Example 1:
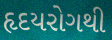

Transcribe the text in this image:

હૃદયરોગથી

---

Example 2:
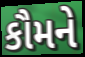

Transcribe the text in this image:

કૌમને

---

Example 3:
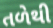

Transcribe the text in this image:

તળેથી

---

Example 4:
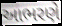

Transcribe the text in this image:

આભરણે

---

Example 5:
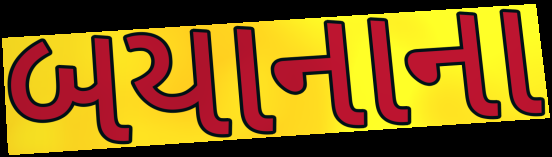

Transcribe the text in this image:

બયાનાના